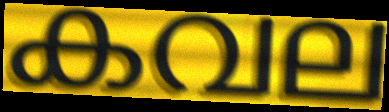
കവല